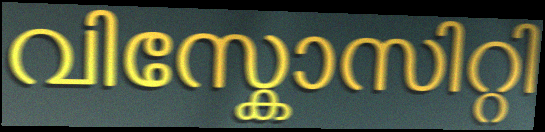
വിസ്കോസിറ്റി